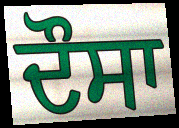
ਦੌਸਾ